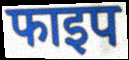
फाइप